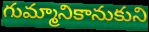
గుమ్మానికానుకుని